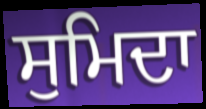
ਸੁਮਿਦਾ